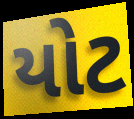
યોટ